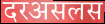
दरअसलस